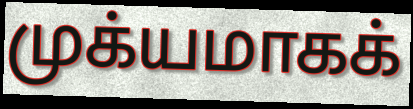
முக்யமாகக்